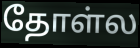
தோள்ல